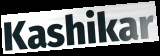
Kashikar